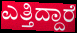
ಎತ್ತಿದ್ದಾರೆ